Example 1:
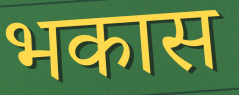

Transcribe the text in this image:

भकास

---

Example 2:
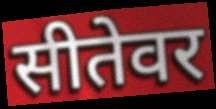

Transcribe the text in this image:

सीतेवर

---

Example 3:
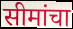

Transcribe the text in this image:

सीमांचा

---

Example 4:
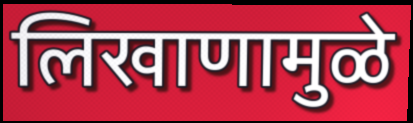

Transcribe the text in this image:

लिखाणामुळे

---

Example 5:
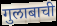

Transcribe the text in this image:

गुलाबाची